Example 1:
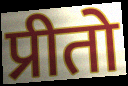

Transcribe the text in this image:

प्रीतो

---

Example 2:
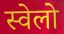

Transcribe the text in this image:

स्वेलो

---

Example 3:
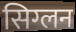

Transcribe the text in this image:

सिग्‍लन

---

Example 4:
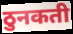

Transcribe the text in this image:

ठुनकती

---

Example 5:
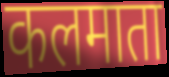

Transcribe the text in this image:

कलमाता